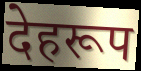
देहरूप